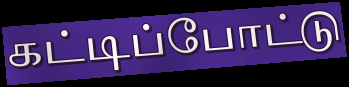
கட்டிப்போட்டு